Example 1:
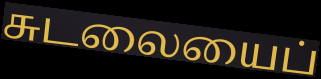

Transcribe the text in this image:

சுடலையைப்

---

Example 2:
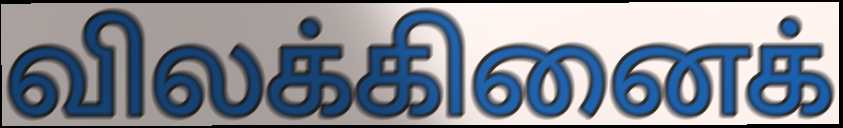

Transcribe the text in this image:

விலக்கினைக்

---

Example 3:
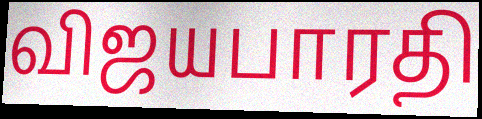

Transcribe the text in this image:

விஜயபாரதி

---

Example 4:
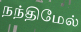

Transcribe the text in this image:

நந்திமேல்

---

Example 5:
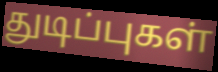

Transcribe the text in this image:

துடிப்புகள்